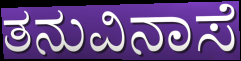
ತನುವಿನಾಸೆ